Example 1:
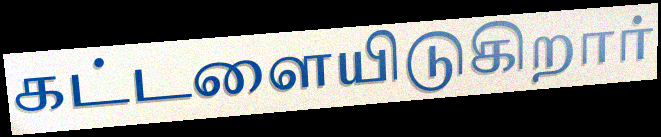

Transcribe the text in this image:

கட்டளையிடுகிறார்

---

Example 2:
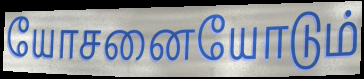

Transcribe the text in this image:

யோசனையோடும்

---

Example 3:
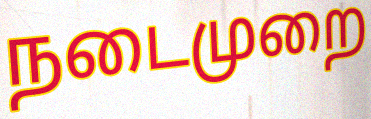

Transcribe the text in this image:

நடைமுறை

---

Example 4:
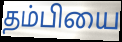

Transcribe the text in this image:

தம்பியை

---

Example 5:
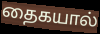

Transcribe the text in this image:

தைகயால்